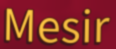
Mesir